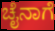
ಚೈನಾಗೆ